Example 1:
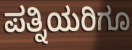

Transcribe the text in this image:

ಪತ್ನಿಯರಿಗೂ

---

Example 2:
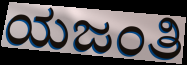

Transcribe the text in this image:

ಯಜಂತಿ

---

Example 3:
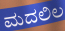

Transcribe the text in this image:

ಮದಲಿಲ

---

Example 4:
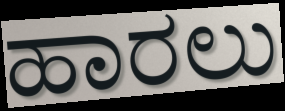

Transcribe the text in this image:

ಹಾರಲು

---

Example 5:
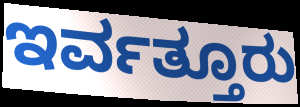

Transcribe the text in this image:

ಇರ್ವತ್ತೂರು